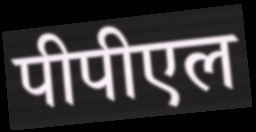
पीपीएल